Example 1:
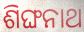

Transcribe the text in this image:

ଶିଙ୍ଘନାଥ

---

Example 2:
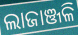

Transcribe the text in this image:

ଲାଜାଞ୍ଜଳି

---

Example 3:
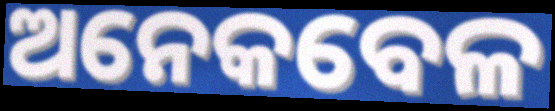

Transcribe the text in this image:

ଅନେକବେଳ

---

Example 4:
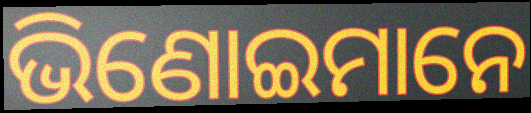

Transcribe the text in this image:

ଭିଣୋଇମାନେ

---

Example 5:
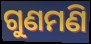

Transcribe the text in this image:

ଗୁଣମଣି